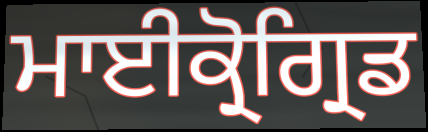
ਮਾਈਕ੍ਰੋਗ੍ਰਿਡ